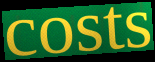
costs